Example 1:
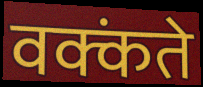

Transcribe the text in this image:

वक्कंते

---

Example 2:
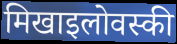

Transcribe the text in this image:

मिखाइलोवस्की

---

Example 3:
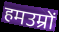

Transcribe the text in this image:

हमउम्रों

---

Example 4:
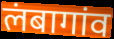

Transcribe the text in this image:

लंबागांव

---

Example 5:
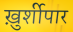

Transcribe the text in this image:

ख़ुर्शीपार